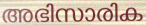
അഭിസാരിക